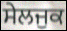
ਸੇਲਜੁਕ